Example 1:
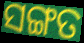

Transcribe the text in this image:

ସଙ୍ଗତ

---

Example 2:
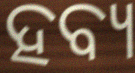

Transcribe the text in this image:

ହବ୍ୟ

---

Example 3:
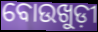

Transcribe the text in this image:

ବୋଉଖୁଡ଼ୀ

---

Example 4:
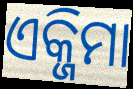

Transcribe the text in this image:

ଏକ୍ଜିମା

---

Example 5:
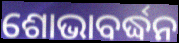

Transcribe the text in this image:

ଶୋଭାବର୍ଦ୍ଧନ